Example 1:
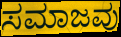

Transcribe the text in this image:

ಸಮಾಜವು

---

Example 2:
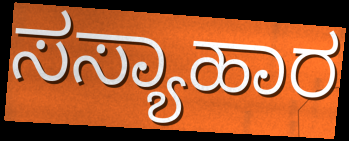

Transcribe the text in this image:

ಸಸ್ಯಾಹಾರ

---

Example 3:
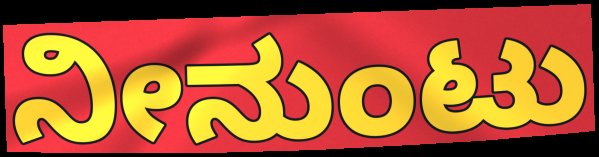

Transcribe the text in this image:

ನೀನುಂಟು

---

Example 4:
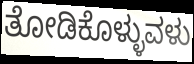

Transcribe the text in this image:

ತೋಡಿಕೊಳ್ಳುವಳು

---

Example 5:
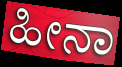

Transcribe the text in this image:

ಹೀನಾ